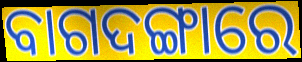
ବାଗଦଙ୍ଗାରେ